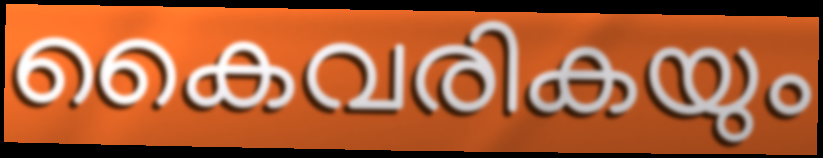
കൈവരികയും